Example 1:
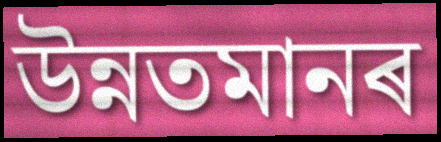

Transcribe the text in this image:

উন্নতমানৰ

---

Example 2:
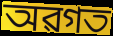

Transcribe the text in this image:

অৱগত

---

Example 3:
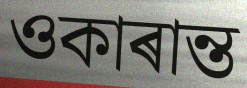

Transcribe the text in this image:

ওকাৰান্ত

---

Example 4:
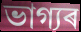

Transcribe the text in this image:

ভাগ্যৰ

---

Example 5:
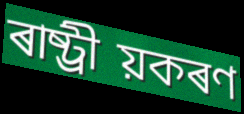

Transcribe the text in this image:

ৰাষ্ট্ৰীয়কৰণ